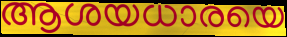
ആശയധാരയെ